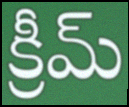
క్రీమ్